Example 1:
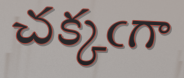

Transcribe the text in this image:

చక్కఁగా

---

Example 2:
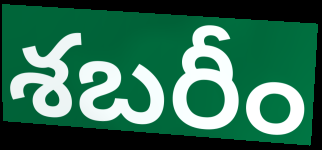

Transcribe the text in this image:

శబరీం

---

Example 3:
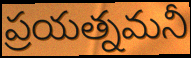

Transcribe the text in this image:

ప్రయత్నమనీ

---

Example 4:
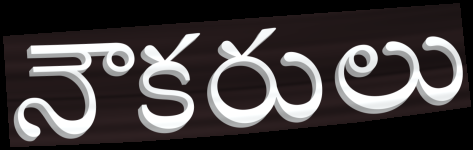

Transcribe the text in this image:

నౌకరులు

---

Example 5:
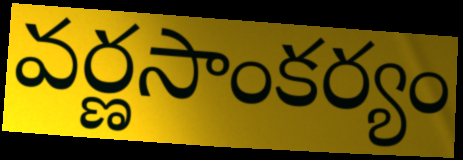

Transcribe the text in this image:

వర్ణసాంకర్యం